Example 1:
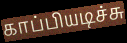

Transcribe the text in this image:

காப்பியடிச்சு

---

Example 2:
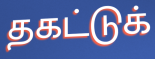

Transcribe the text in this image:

தகட்டுக்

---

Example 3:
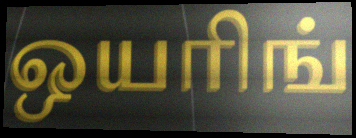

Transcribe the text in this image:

ஒயரிங்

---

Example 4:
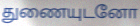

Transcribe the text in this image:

துணையுடனோ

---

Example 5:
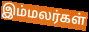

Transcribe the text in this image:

இம்மலர்கள்